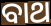
ବାଥ